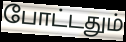
போட்டதும்